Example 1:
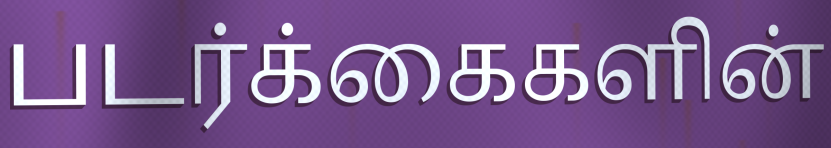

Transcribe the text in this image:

படர்க்கைகளின்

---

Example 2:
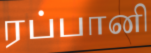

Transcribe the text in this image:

ரப்பானி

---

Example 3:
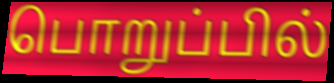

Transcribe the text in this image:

பொறுப்பில்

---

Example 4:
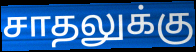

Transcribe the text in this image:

சாதலுக்கு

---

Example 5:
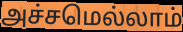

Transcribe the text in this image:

அச்சமெல்லாம்